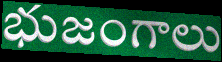
భుజంగాలు